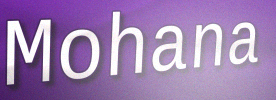
Mohana